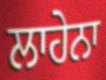
ਲਾਹੇਨਾ